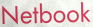
Netbook